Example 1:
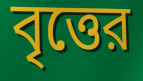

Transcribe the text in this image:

বৃত্তের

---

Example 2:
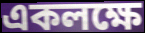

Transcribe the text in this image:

একলক্ষে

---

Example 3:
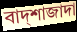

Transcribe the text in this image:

বাদ্শাজাদা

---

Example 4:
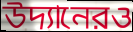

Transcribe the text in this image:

উদ্যানেরও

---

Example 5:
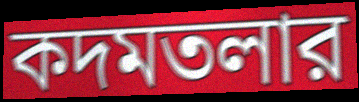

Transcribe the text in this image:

কদমতলার